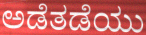
ಅಡೆತಡೆಯು